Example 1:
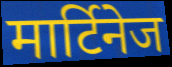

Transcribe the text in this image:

मार्टिनेज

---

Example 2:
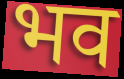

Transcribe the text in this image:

भव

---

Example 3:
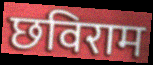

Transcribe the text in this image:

छविराम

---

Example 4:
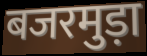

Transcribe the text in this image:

बजरमुड़ा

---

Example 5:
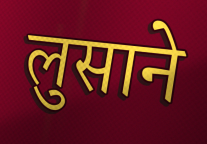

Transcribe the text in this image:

लुसाने